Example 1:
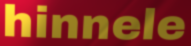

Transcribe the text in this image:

hinnele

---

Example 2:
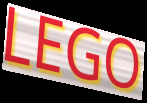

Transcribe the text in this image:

LEGO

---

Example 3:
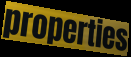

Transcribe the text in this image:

properties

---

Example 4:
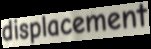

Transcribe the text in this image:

displacement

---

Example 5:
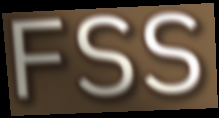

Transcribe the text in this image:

FSS